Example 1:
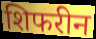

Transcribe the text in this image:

शिफरीन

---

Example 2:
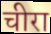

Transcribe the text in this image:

चीरा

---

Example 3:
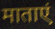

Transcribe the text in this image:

माताएं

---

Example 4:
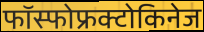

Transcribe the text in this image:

फॉस्फोफ्रक्टोकिनेज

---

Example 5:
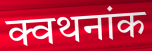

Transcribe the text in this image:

क्वथनांक